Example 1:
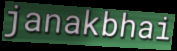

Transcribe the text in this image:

janakbhai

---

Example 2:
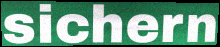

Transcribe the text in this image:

sichern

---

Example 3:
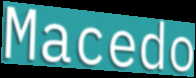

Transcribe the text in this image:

Macedo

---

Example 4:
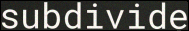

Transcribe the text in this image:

subdivide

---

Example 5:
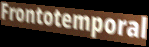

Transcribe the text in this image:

Frontotemporal